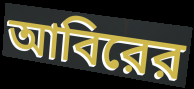
আবিরের